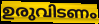
ഉരുവിടണം